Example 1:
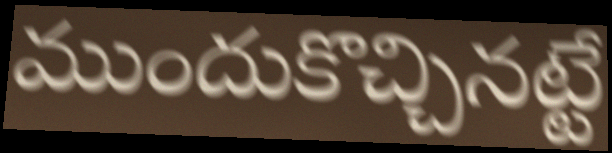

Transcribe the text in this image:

ముందుకొచ్చినట్టే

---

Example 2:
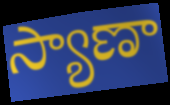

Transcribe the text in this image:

స్యాణా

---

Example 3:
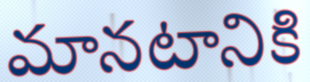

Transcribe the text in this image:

మానటానికి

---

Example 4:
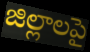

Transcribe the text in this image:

జిల్లాలపై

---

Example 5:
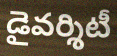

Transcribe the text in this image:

డైవర్శిటీ